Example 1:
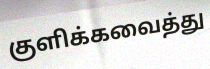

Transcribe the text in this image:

குளிக்கவைத்து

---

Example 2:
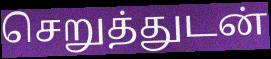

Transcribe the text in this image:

செறுத்துடன்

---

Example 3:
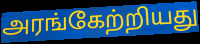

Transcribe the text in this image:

அரங்கேற்றியது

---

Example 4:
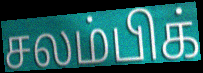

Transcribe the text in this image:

சலம்பிக்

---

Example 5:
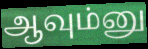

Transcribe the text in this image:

ஆவும்னு